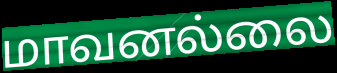
மாவனல்லை